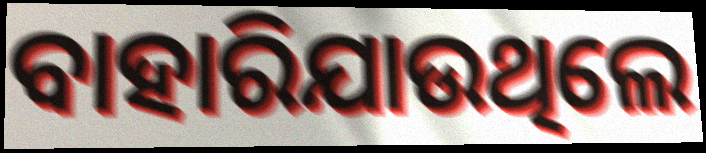
ବାହାରିଯାଉଥିଲେ